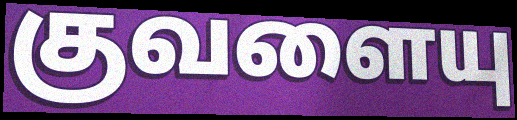
குவளையு